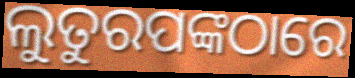
ଲୁତୁରପଙ୍କଠାରେ